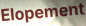
Elopement